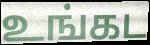
உங்கட